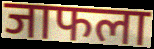
जाफला